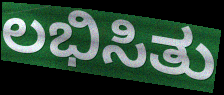
ಲಭಿಸಿತು